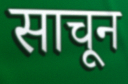
साचून